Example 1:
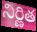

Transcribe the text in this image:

నిర్ణిత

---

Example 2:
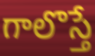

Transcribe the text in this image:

గాలొస్తే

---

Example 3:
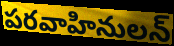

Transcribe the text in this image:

పరవాహినులన్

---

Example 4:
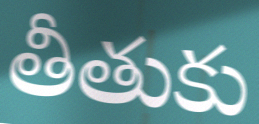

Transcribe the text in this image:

తీతుకు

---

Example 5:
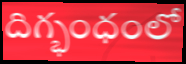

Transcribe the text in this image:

దిగ్భంధంలో